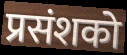
प्रसंशको